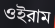
ওইরাম